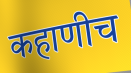
कहाणीच